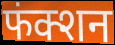
फंक्शन